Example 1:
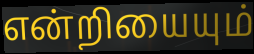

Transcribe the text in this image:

என்றியையும்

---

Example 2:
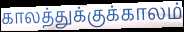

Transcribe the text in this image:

காலத்துக்குக்காலம்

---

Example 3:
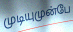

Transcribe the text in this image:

முடியுமுன்பே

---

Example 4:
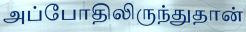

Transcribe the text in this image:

அப்போதிலிருந்துதான்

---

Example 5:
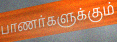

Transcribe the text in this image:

பாணர்களுக்கும்